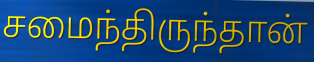
சமைந்திருந்தான்